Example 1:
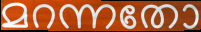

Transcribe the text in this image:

മറന്നതോ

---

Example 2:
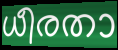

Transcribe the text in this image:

ധീരതാ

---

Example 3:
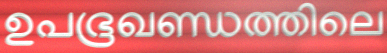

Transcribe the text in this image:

ഉപഭൂഖണ്ഡത്തിലെ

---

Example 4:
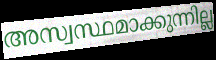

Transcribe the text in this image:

അസ്വസ്ഥമാക്കുന്നില്ല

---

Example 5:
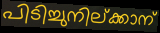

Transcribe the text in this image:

പിടിച്ചുനില്ക്കാന്